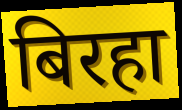
बिरहा